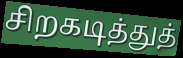
சிறகடித்துத்